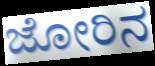
ಜೋರಿನ